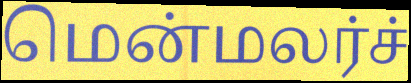
மென்மலர்ச்